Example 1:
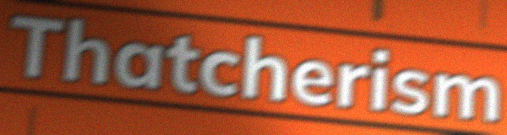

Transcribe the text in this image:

Thatcherism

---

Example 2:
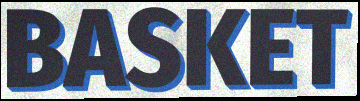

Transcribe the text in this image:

BASKET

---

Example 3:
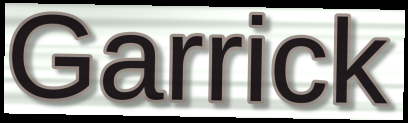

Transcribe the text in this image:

Garrick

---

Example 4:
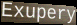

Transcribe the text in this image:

Exupery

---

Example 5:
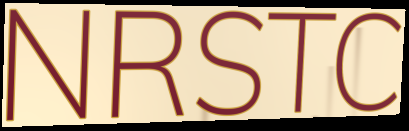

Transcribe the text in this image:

NRSTC